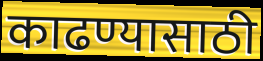
काढण्यासाठी